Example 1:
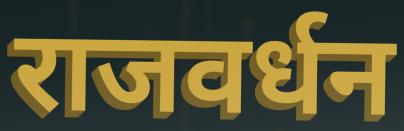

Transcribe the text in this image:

राजवर्धन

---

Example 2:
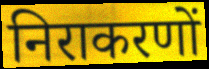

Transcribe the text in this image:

निराकरणों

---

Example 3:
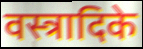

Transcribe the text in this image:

वस्त्रादिके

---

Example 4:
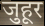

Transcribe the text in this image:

जुहूर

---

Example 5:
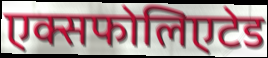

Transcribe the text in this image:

एक्सफोलिएटेड